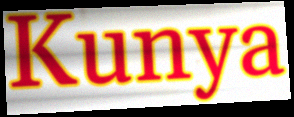
Kunya